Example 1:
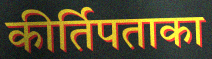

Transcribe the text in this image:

कीर्तिपताका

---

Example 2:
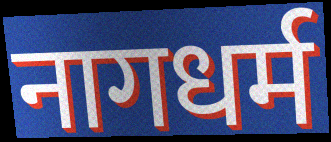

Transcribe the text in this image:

नागधर्म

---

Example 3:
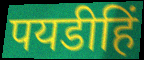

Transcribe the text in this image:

पयडीहिं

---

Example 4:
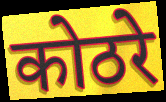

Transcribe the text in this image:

कोठरे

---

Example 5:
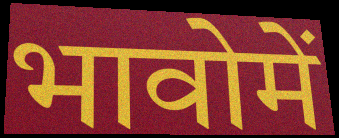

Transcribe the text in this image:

भावोमें